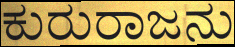
ಕುರುರಾಜನು